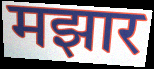
मझार